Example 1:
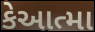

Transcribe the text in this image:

કેઆત્મા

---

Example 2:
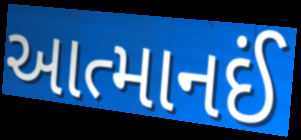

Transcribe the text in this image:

આત્માનઈં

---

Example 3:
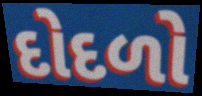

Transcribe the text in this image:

દોદળો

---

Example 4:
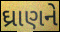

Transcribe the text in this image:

ઘ્રાણને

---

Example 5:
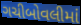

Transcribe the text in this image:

ગચીબોવલીમાં